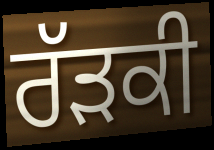
ਰੱੜਕੀ